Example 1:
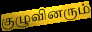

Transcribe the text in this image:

குழுவினரும்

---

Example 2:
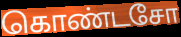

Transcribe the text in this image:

கொண்டசோ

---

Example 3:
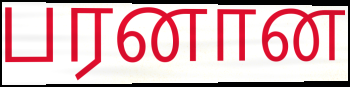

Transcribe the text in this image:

பரனான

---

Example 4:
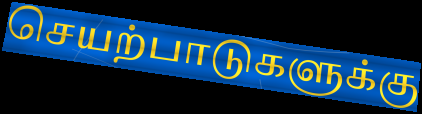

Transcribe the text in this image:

செயற்பாடுகளுக்கு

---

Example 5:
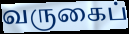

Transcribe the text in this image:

வருகைப்